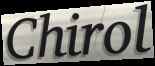
Chirol